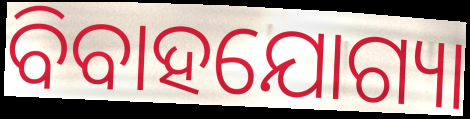
ବିବାହଯୋଗ୍ୟା